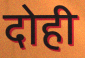
दोही